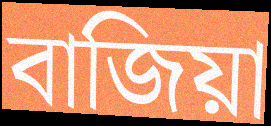
বাজিয়া